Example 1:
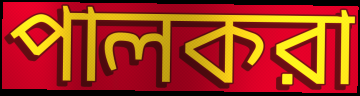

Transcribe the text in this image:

পালকরা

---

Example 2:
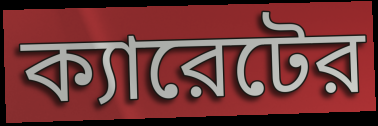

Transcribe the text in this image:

ক্যারেটের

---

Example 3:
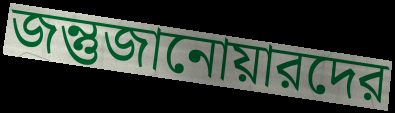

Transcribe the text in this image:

জন্তুজানোয়ারদের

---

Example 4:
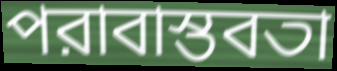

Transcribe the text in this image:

পরাবাস্তবতা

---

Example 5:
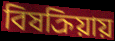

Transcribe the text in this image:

বিষক্রিয়ায়